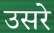
उसरे